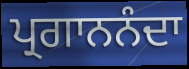
ਪ੍ਰਗਾਨਨੰਦਾ